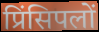
प्रिंसिपलों